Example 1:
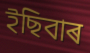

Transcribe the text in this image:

ইছিবাৰ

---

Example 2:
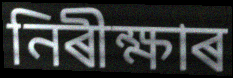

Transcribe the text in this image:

নিৰীক্ষাৰ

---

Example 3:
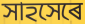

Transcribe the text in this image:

সাহসেৰে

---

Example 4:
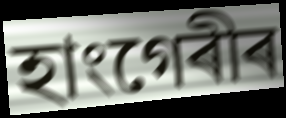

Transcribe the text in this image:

হাংগেৰীৰ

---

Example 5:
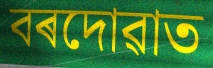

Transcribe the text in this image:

বৰদোৱাত